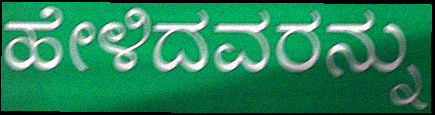
ಹೇಳಿದವರನ್ನು